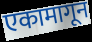
एकामागून